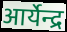
आर्येन्द्र